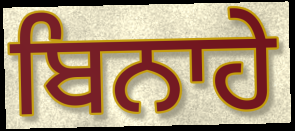
ਬਿਨਾਹੇ